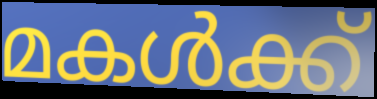
മകൾക്ക്